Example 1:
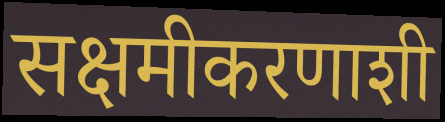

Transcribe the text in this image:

सक्षमीकरणाशी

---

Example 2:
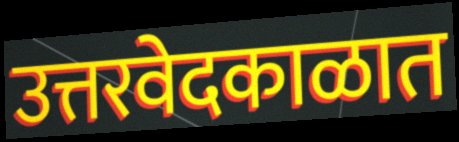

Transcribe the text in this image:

उत्तरवेदकाळात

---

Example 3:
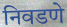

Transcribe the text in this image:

निवडणे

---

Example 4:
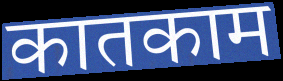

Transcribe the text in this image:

कातकाम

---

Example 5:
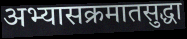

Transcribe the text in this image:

अभ्यासक्रमातसुद्धा